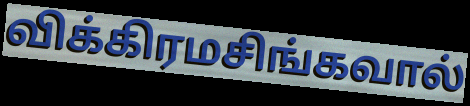
விக்கிரமசிங்கவால்